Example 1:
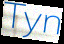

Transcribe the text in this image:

Tyn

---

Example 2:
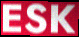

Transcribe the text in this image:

ESK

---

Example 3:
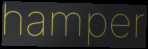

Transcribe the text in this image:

hamper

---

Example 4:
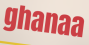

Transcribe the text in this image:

ghanaa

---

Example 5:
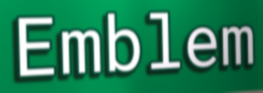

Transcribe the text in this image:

Emblem